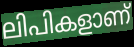
ലിപികളാണ്